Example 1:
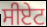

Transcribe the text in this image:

ਸੀਏਟ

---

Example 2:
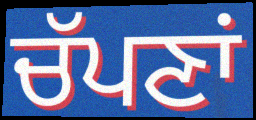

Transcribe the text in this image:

ਚੱਪਣਾਂ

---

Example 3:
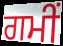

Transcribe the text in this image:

ਗਮੀਂ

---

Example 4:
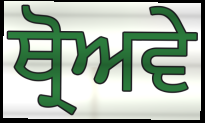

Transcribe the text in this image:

ਥ੍ਰੋਅਵੇ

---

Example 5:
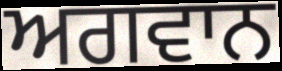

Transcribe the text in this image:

ਅਗਵਾਨ